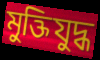
মুক্তিযুদ্ধ